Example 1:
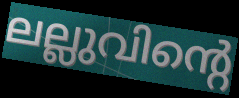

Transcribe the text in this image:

ലല്ലുവിന്റെ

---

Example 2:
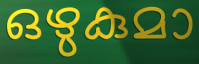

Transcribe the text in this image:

ഒഴുകുമാ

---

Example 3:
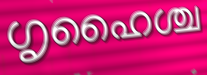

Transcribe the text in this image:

ഗൃഹൈശ്ച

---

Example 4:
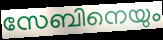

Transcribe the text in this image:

സേബിനെയും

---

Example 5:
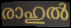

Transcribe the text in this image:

രാഹുൽ